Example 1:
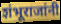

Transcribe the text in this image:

शंभूराजांनी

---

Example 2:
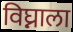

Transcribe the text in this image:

विघ्नाला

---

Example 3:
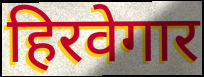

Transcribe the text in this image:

हिरवेगार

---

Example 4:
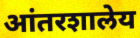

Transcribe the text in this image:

आंतरशालेय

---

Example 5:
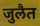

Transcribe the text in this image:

जुलैत